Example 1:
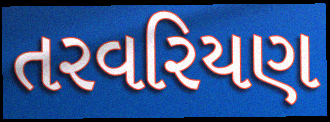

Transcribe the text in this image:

તરવરિયણ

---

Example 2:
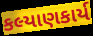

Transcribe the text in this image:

કલ્યાણકાર્ય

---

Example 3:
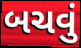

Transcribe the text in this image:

બચવું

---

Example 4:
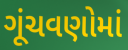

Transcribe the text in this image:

ગૂંચવણોમાં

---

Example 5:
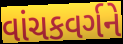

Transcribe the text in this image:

વાંચકવર્ગને